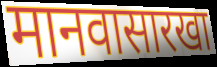
मानवासारखा